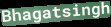
Bhagatsingh